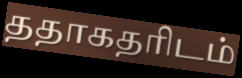
ததாகதரிடம்